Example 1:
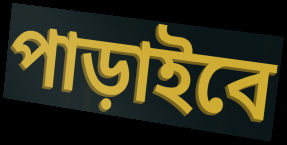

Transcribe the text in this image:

পাড়াইবে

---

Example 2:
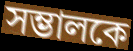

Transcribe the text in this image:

সম্ভালকে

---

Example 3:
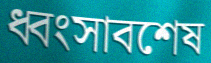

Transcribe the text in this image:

ধ্বংসাবশেষ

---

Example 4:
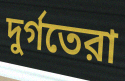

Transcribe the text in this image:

দুর্গতেরা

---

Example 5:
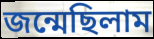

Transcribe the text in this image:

জন্মেছিলাম